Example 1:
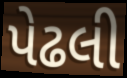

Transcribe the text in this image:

પેઢલી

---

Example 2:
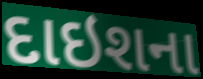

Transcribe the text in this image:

દાઇશના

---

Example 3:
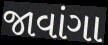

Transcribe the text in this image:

જાવાંગા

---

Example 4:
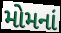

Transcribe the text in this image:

મોમનાં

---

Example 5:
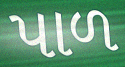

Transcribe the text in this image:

પાળ